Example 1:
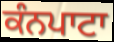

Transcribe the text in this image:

ਕੰਨਪਾਟਾ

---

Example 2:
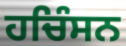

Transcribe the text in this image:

ਹਚਿੰਸਨ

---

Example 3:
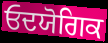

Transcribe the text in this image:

ਓਦਯੋਗਿਕ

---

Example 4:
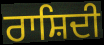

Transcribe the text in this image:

ਰਾਸ਼ਿਦੀ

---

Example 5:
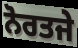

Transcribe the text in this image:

ਨੋਰਤਜੇ